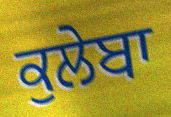
ਕੁਲੇਬਾ